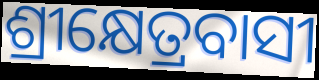
ଶ୍ରୀକ୍ଷେତ୍ରବାସୀ